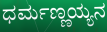
ಧರ್ಮಣ್ಣಯ್ಯನ